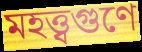
মহত্ত্বগুণে